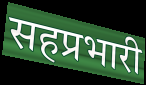
सहप्रभारी